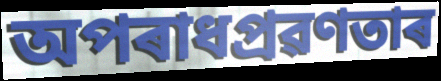
অপৰাধপ্ৰৱণতাৰ